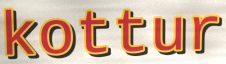
kottur